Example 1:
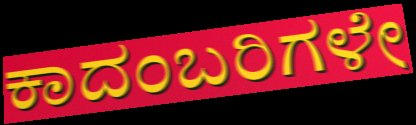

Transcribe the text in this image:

ಕಾದಂಬರಿಗಳೇ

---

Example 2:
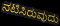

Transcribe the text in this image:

ನಟಿಸಿರುವುದು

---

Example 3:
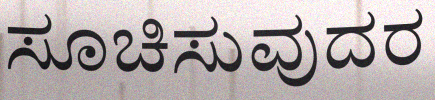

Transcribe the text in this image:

ಸೂಚಿಸುವುದರ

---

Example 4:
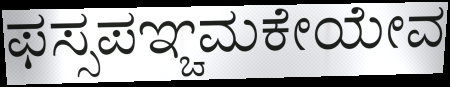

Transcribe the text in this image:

ಫಸ್ಸಪಞ್ಚಮಕೇಯೇವ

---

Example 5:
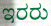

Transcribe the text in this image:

ಇರರು